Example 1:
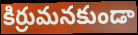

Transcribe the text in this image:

కిర్రుమనకుండా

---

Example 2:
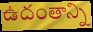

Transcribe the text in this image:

ఉదంతాన్ని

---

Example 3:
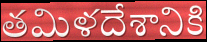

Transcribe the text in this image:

తమిళదేశానికి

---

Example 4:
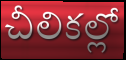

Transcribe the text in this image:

చీలికల్లో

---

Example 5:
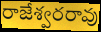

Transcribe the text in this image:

రాజేశ్వరరావు